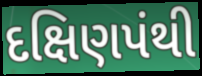
દક્ષિણપંથી